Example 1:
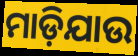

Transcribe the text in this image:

ମାଡ଼ିଯାଉ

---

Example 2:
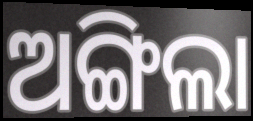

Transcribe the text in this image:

ଅଙ୍ଗିଲା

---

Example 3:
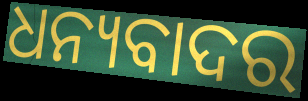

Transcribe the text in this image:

ଧନ୍ୟବାଦର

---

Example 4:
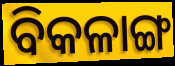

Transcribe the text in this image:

ବିକଳାଙ୍ଗ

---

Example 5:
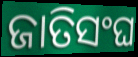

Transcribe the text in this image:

ଜାତିସଂଘ